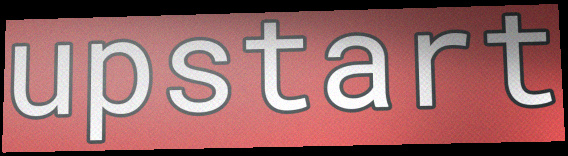
upstart